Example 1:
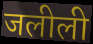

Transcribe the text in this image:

जलीली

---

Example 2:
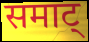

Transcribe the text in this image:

समाट्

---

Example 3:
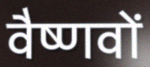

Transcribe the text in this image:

वैष्णवों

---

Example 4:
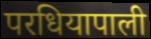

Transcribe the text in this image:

परधियापाली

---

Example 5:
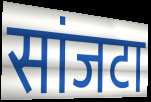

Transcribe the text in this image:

सांजटा